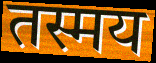
तस्मय